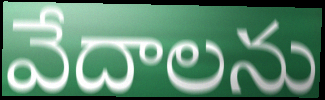
వేదాలను